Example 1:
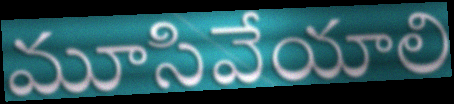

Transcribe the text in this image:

మూసివేయాలి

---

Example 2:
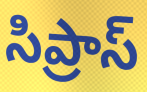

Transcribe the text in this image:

సిప్రాస్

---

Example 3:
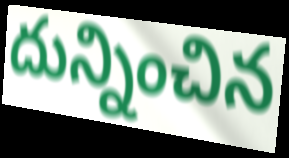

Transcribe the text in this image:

దున్నించిన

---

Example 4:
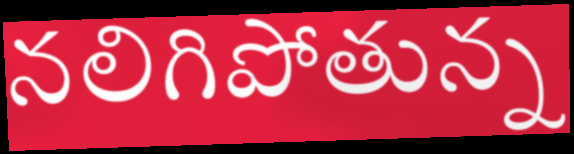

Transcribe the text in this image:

నలిగిపోతున్న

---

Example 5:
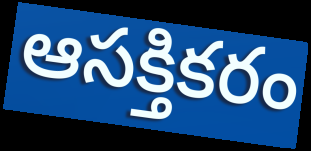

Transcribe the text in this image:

ఆసక్తికరం